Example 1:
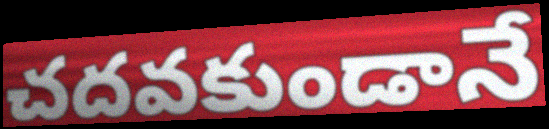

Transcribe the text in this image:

చదవకుండానే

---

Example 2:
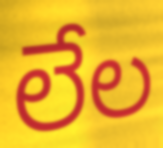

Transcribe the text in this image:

లేల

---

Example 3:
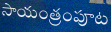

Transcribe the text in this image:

సాయంత్రంపూట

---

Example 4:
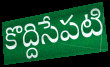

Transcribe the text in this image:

కొద్దిసేపటి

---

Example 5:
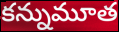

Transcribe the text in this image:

కన్నుమూత